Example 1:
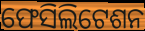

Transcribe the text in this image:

ଫେସିଲିଟେଶନ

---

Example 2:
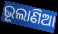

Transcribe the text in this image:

ଭୂଲାଣିଆ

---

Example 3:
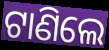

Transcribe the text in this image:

ଟାଣିଲେ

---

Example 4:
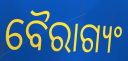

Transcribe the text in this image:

ବୈରାଗ୍ୟଂ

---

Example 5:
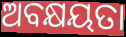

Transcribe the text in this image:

ଅବକ୍ଷୟତା